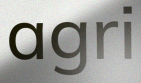
agri